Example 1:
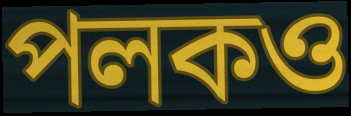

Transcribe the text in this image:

পলকও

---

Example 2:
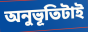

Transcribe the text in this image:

অনুভূতিটাই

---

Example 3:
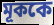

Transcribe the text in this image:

মূককে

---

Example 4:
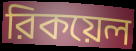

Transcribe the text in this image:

রিকয়েল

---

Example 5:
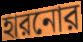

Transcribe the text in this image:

হারনোর